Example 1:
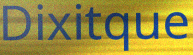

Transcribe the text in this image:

Dixitque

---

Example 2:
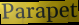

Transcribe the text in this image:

Parapet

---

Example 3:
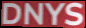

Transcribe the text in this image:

DNYS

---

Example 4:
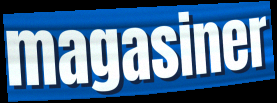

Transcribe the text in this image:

magasiner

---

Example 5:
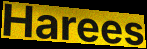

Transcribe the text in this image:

Harees